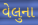
વેલુના